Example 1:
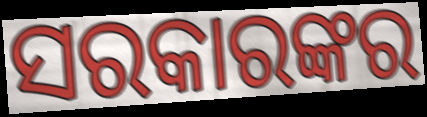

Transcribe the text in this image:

ସରକାରଙ୍କର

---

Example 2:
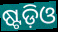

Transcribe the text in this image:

ଷ୍ଟଡ଼ିଓ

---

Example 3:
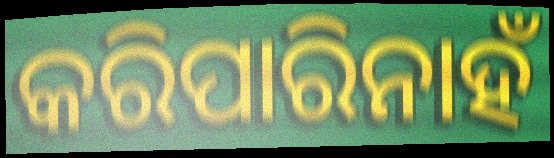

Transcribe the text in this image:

କରିପାରିନାହଁ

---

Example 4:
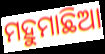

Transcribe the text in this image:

ମହୁମାଛିଆ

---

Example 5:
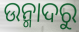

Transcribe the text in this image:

ଉନ୍ମାଦରୁ